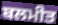
ਬਲਮੀਤ